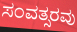
ಸಂವತ್ಸರವು